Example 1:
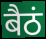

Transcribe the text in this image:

बैठं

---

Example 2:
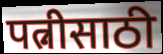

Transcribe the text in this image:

पत्नीसाठी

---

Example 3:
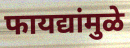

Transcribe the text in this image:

फायद्यांमुळे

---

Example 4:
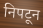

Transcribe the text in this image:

निपटून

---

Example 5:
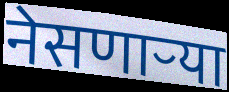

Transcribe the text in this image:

नेसणाऱ्या